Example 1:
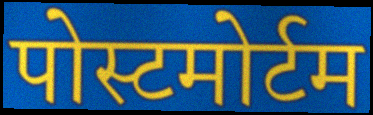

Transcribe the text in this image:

पोस्टमोर्टम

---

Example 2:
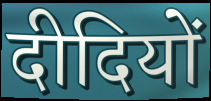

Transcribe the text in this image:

दीदियों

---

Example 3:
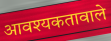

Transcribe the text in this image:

आवश्यकतावाले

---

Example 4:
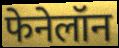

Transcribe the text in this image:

फेनेलॉन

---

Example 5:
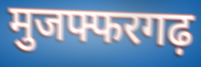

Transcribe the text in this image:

मुजफ्फरगढ़